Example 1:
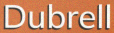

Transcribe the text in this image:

Dubrell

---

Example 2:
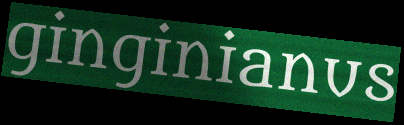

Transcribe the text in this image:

ginginianus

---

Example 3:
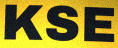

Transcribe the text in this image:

KSE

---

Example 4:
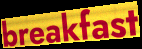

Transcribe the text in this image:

breakfast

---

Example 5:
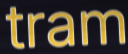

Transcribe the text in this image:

tram